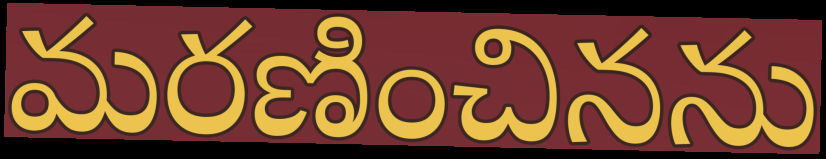
మరణించినను